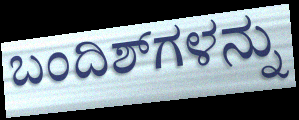
ಬಂದಿಶ್‌ಗಳನ್ನು